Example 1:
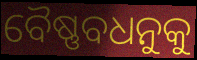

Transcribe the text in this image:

ବୈଷ୍ଣବଧନୁକୁ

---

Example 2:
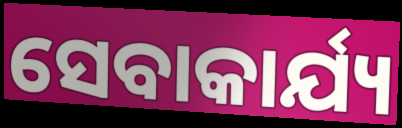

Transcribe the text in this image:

ସେବାକାର୍ଯ୍ୟ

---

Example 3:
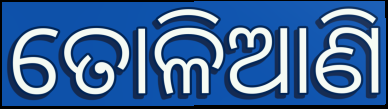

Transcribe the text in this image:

ତୋଳିଆଣି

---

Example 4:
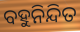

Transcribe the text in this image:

ବହୁନିନ୍ଦିତ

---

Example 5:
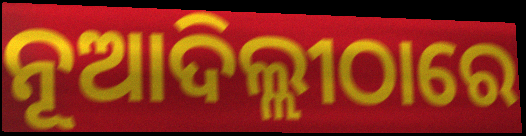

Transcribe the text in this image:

ନୂଆଦିଲ୍ଲୀଠାରେ